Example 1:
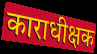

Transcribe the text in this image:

काराधीक्षक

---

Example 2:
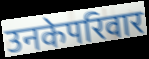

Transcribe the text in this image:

उनकेपरिवार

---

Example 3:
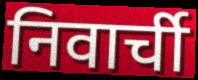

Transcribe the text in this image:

निवार्ची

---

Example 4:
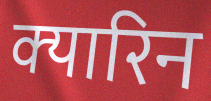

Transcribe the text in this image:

क्यारिन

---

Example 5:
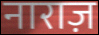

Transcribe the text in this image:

नाराज़